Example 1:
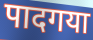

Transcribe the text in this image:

पादगया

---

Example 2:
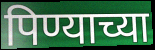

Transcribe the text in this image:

पिण्याच्या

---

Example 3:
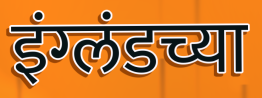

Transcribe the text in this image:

इंग्‍लंडच्या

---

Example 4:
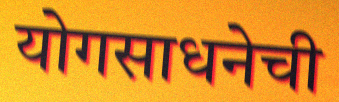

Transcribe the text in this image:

योगसाधनेची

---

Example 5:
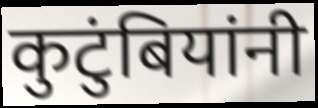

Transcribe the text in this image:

कुटुंबियांनी